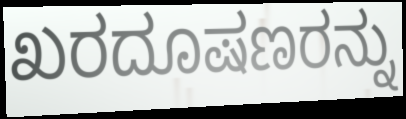
ಖರದೂಷಣರನ್ನು